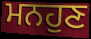
ਮਨਹੁਣ